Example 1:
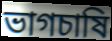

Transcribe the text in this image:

ভাগচাষি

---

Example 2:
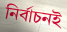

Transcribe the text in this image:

নির্বাচনই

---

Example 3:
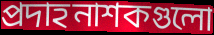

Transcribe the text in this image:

প্রদাহনাশকগুলো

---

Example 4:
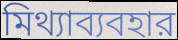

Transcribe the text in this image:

মিথ্যাব্যবহার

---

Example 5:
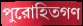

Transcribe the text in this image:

পুরোহিতগণ